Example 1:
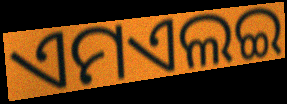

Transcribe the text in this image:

ଏମଏଲଇ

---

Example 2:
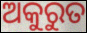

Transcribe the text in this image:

ଅକୁରୁତ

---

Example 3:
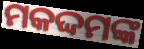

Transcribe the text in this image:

ମକଦ୍ଦମଙ୍କ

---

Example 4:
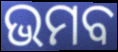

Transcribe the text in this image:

ଭମବ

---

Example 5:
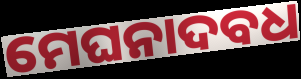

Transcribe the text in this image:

ମେଘନାଦବଧ